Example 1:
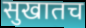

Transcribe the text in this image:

सुखातच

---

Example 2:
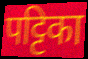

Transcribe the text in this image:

पट्टिका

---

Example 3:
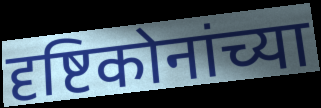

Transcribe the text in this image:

दृष्टिकोनांच्या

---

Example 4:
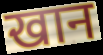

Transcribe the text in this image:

खान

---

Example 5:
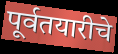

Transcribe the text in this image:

पूर्वतयारीचे